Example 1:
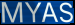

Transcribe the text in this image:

MYAS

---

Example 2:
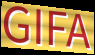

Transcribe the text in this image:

GIFA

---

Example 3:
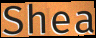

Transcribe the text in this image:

Shea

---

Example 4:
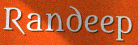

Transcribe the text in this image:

Randeep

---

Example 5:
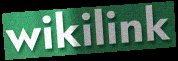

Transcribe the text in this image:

wikilink